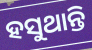
ହସୁଥାନ୍ତି